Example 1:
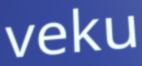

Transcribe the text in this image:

veku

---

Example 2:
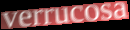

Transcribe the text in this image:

verrucosa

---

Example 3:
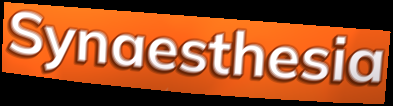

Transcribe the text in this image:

Synaesthesia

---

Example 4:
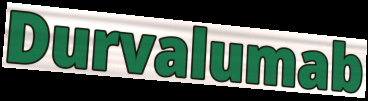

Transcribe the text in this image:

Durvalumab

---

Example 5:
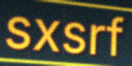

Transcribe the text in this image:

sxsrf